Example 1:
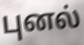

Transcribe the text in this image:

புனல்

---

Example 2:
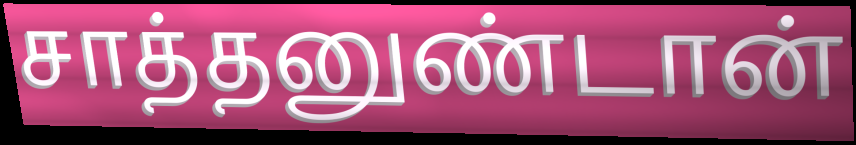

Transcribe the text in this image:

சாத்தனுண்டான்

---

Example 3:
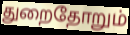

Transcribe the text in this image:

துறைதோறும்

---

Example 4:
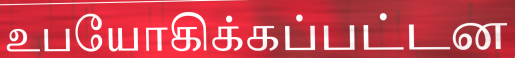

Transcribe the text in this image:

உபயோகிக்கப்பட்டன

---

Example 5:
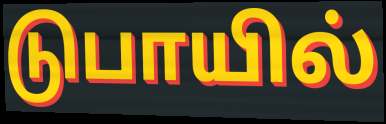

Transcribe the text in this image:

டுபாயில்